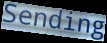
Sending